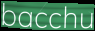
bacchu